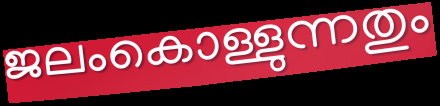
ജലംകൊള്ളുന്നതും